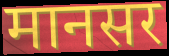
मानसर